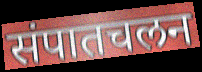
संपातचलन